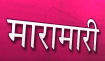
मारामारी